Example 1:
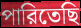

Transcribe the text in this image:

পারিতেছি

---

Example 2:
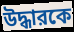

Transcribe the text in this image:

উদ্ধারকে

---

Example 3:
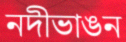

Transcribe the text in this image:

নদীভাঙন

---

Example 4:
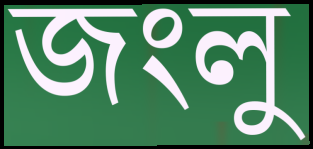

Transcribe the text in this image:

জংলু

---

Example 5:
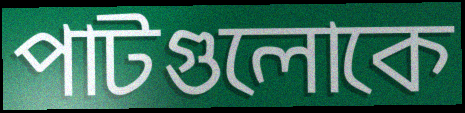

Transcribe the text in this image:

পাটগুলোকে